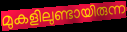
മുകളിലുണ്ടായിരുന്ന